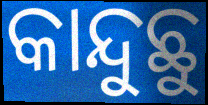
କାନ୍ଦୁଛୁ